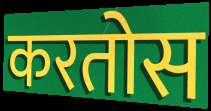
करतोस